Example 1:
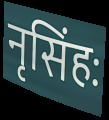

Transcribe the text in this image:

नृसिंहः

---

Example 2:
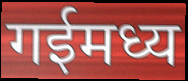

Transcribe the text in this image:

गईमध्य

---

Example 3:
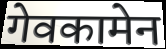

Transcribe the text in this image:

गेवकामेन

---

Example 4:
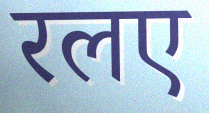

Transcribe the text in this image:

रलए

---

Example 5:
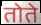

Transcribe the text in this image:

तोते